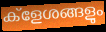
ക്ളേശങ്ങളും